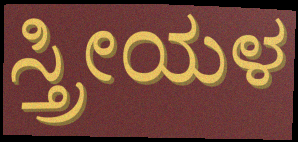
ಸ್ತ್ರೀಯಳ